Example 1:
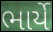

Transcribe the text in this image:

ભાર્યે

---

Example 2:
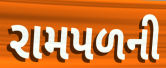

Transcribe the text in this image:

રામપળની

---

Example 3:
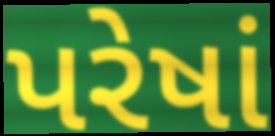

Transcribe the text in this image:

પરેષાં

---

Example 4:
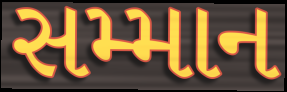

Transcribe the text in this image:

સમ્માન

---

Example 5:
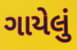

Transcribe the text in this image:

ગાયેલું